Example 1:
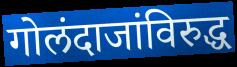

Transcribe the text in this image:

गोलंदाजांविरुद्ध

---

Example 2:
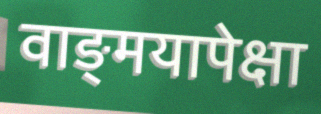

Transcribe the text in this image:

वाङ्मयापेक्षा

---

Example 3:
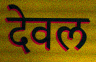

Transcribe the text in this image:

देवल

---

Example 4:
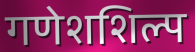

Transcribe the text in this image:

गणेशशिल्प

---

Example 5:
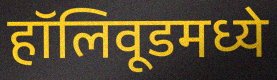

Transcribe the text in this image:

हॉलिवूडमध्ये